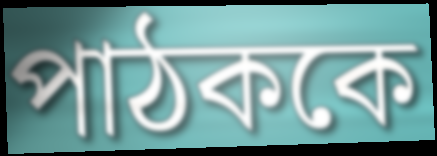
পাঠককে